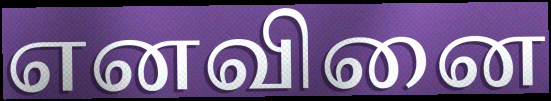
எனவினை